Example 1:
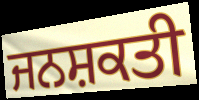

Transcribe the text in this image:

ਜਨਸ਼ਕਤੀ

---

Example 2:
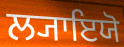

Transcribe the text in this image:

ਲ੍ਯਾਇਯੋ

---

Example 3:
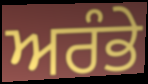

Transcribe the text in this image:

ਅਰੰਭੇ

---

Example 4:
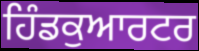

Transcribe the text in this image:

ਹਿੰਡਕੁਆਰਟਰ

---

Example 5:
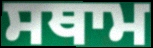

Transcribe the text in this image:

ਸਥਾਮ